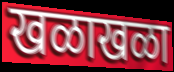
खळाखळा